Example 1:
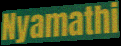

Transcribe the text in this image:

Nyamathi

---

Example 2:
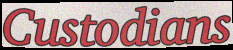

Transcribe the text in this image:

Custodians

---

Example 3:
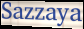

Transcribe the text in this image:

Sazzaya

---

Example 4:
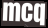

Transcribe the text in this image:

mcq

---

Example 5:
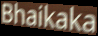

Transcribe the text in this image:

Bhaikaka